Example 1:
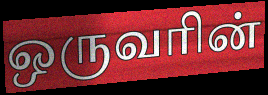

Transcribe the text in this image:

ஒருவரின்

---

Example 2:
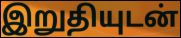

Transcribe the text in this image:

இறுதியுடன்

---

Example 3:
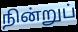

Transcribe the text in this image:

நின்றுப்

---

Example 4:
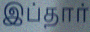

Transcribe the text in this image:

இப்தார்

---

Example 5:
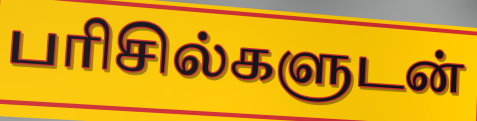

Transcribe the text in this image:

பரிசில்களுடன்